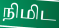
நிமிட